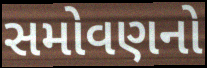
સમોવણનો